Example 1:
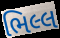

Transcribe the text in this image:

ભિલ્લ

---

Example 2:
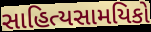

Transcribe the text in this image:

સાહિત્યસામયિકો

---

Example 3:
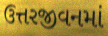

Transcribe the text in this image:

ઉત્તરજીવનમાં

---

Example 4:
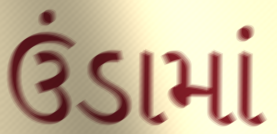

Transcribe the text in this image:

ઉંડામાં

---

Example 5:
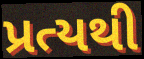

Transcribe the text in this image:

પ્રત્યથી